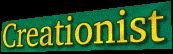
Creationist